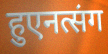
हुएनत्संग